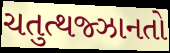
ચતુત્થજ્ઝાનતો